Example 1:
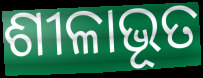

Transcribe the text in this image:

ଶୀଳାଭୂତ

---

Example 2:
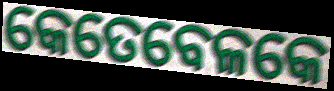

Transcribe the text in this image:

କେତେବେଳକେ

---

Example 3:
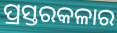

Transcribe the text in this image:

ପ୍ରସ୍ତରକଳାର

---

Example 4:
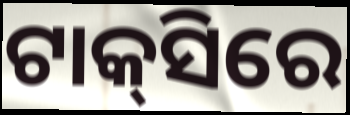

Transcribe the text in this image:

ଟାକ୍‌ସିରେ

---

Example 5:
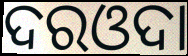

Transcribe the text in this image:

ଦରଓଦା